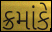
ક્રમાંકે